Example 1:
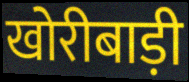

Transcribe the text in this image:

खोरीबाड़ी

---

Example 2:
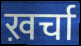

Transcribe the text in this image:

ख़र्चा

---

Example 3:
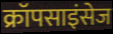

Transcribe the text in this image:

क्रॉपसाइंसेज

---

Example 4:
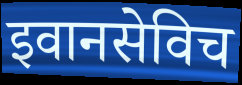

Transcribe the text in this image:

इवानसेविच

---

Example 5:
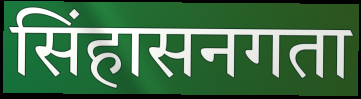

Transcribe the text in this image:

सिंहासनगता